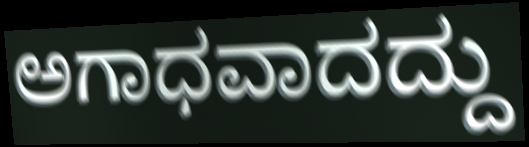
ಅಗಾಧವಾದದ್ದು